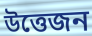
উত্তেজন